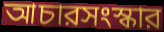
আচারসংস্কার